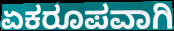
ಏಕರೂಪವಾಗಿ